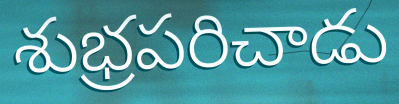
శుభ్రపరిచాడు